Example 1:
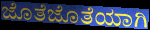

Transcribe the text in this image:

ಜೊತೆಜೊತೆಯಾಗಿ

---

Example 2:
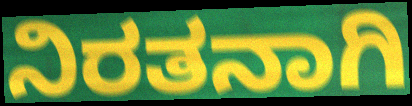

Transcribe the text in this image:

ನಿರತನಾಗಿ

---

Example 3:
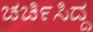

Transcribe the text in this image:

ಚರ್ಚಿಸಿದ್ದ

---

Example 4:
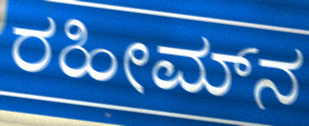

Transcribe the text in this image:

ರಹೀಮ್‌ನ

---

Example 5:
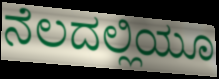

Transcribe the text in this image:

ನೆಲದಲ್ಲಿಯೂ